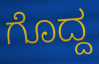
ಗೊದ್ದ